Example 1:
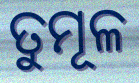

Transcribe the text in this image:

ତୁମୂଳ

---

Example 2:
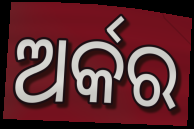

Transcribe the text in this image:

ଅର୍କର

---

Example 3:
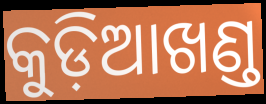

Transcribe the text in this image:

କୁଡ଼ିଆଖଣ୍ଡ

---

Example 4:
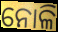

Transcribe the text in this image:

ନୋଳି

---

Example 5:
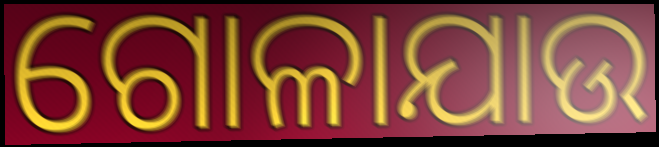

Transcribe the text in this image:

ଗୋଳାଯାଉ